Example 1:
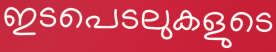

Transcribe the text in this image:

ഇടപെടലുകളുടെ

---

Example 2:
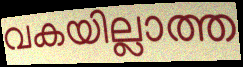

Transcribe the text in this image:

വകയില്ലാത്ത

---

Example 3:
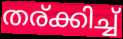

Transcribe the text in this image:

തര്ക്കിച്ച്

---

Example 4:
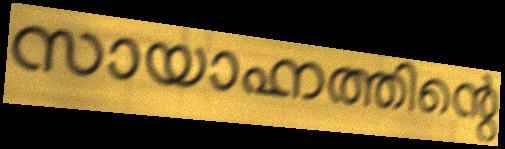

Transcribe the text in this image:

സായാഹ്നത്തിന്റെ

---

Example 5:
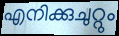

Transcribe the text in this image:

എനിക്കുചുറ്റും